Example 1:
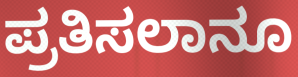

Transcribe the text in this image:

ಪ್ರತಿಸಲಾನೂ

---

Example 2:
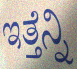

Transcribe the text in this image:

ಇತ್ತೆನ್ನಿ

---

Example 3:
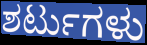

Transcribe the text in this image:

ಶರ್ಟುಗಳು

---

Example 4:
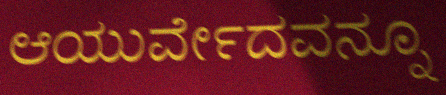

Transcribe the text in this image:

ಆಯುರ್ವೇದವನ್ನೂ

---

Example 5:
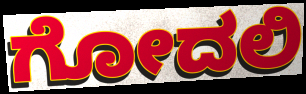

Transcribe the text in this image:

ಗೋದಲಿ